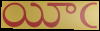
యీఁ